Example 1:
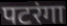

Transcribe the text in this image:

पटरंगा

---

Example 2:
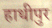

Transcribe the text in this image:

हाथीपुर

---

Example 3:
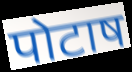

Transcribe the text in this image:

पोटाष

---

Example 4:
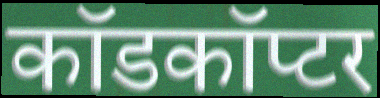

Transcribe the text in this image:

कॉडकॉप्टर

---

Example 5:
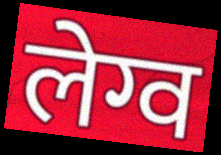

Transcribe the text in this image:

लेग्व